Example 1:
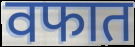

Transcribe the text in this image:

वफात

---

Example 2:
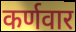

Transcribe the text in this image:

कर्णवार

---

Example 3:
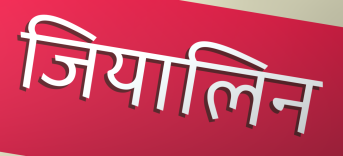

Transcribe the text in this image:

जियालिन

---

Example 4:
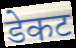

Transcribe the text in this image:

डेकट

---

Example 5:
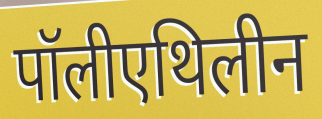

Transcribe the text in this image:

पॉलीएथिलीन